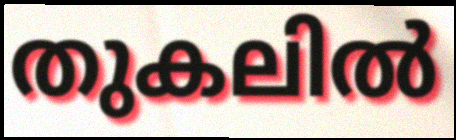
തുകലിൽ